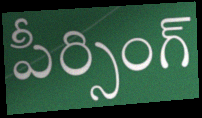
పీర్సింగ్